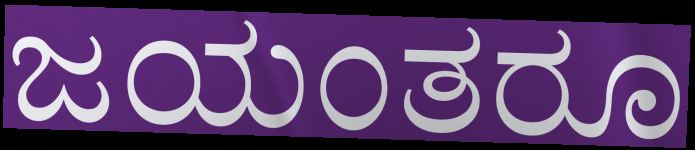
ಜಯಂತರೂ